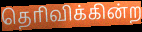
தெரிவிக்கின்ற